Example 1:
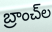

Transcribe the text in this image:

బ్రాంచ్‌ల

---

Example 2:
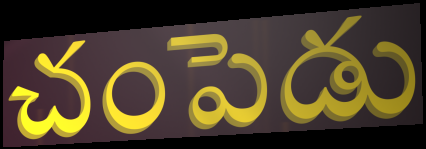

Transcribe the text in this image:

చంపెడు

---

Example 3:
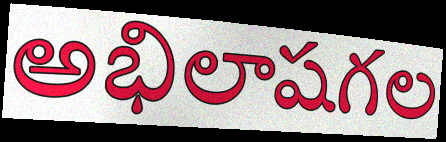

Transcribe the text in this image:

అభిలాషగల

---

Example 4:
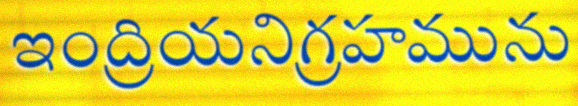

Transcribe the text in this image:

ఇంద్రియనిగ్రహమును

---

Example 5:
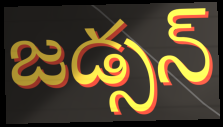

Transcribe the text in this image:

జడ్సన్